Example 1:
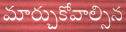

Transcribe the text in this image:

మార్చుకోవాల్సిన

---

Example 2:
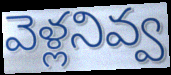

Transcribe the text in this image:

వెళ్లనివ్వ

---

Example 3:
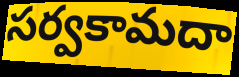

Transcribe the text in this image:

సర్వకామదా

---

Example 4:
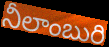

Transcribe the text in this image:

నీలాంబురి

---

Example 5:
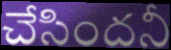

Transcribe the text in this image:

చేసిందనీ